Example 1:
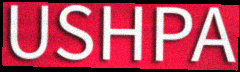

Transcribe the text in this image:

USHPA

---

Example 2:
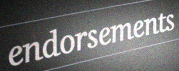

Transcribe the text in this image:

endorsements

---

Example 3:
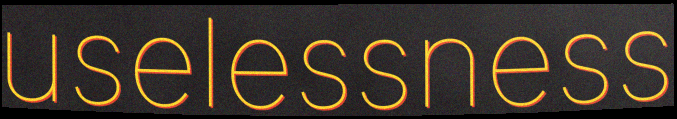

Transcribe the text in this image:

uselessness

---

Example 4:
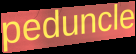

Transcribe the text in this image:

peduncle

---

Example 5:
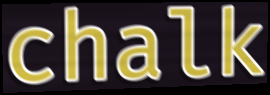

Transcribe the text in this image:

chalk